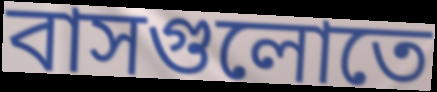
বাসগুলোতে